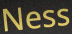
Ness